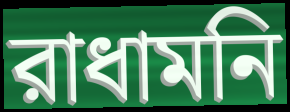
রাধামনি